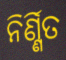
ନିର୍ଣ୍ଣିତ